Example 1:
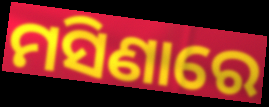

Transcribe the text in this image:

ମସିଣାରେ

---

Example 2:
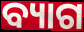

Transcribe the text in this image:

ବ୍ୟାଗ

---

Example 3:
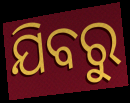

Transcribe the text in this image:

ଯିବରୁ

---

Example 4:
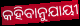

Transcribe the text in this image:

କହିବାନୁଯାୟୀ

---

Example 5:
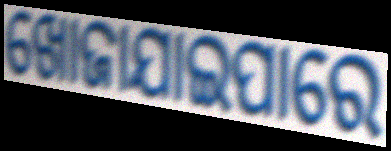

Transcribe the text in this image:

ଖୋଜାଯାଇପାରେ